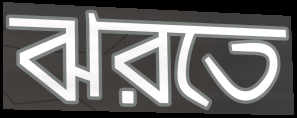
ঝরতে